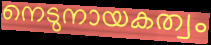
നെടുനായകത്വം